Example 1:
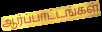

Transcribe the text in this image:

ஆர்ப்பாட்டங்கள்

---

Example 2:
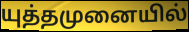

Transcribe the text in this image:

யுத்தமுனையில்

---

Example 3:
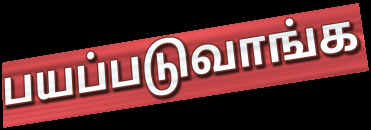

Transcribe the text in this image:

பயப்படுவாங்க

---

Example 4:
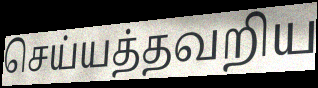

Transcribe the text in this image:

செய்யத்தவறிய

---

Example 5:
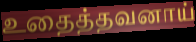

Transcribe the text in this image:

உதைத்தவனாய்